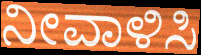
ನೀವಾಳಿಸಿ